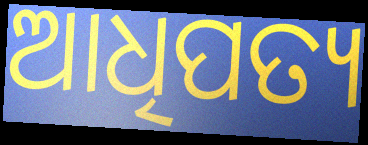
ଆଧିପତ୍ୟ